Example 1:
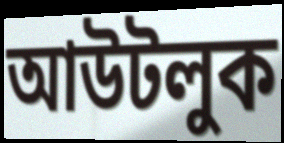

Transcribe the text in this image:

আউটলুক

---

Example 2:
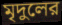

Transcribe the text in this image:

মৃদুলের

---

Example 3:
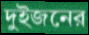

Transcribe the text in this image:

দুইজনের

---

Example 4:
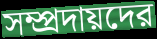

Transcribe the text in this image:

সম্প্রদায়দের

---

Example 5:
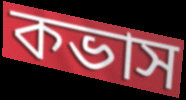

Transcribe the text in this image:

কভাস